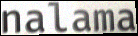
nalama